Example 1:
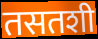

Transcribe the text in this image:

तसतशी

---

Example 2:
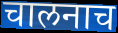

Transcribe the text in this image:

चालनाच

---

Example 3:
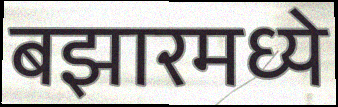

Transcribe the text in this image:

बझारमध्ये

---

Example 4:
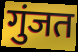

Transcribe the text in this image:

गुंजत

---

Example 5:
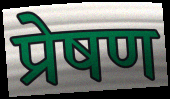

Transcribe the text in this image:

प्रेषण